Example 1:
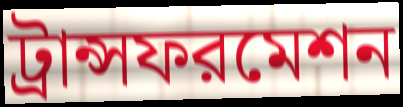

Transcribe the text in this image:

ট্রান্সফরমেশন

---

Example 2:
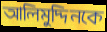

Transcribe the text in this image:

আলিমুদ্দিনকে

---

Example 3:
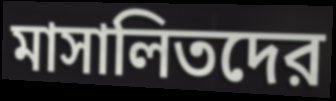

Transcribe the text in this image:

মাসালিতদের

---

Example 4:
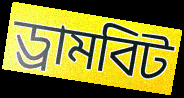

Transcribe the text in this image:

ড্রামবিট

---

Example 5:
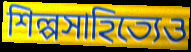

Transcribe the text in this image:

শিল্পসাহিত্যেও